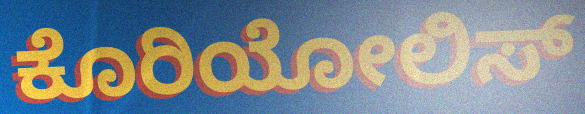
ಕೊರಿಯೋಲಿಸ್